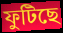
ফুটিছে